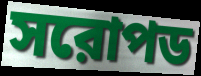
সরোপড